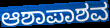
ಆಶಾಪಾಶವ